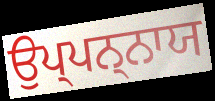
ਉਪ੍ਪਨ੍ਨਾਯ